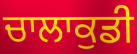
ਚਾਲਾਕੁਡੀ